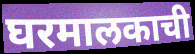
घरमालकाची